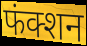
फंक्शन